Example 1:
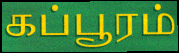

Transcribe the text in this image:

கப்பூரம்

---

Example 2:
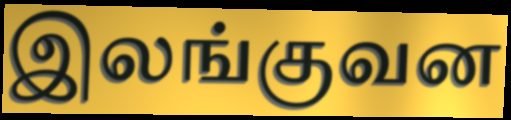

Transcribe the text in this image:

இலங்குவன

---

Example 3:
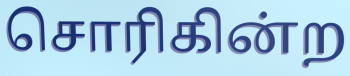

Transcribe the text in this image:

சொரிகின்ற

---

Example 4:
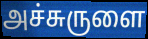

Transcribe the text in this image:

அச்சுருளை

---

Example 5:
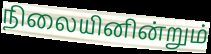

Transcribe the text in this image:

நிலையினின்றும்